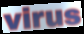
virus